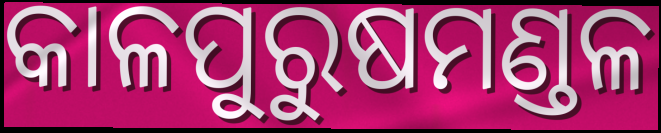
କାଳପୁରୁଷମଣ୍ଡଳ